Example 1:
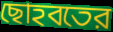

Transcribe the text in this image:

ছোহবতের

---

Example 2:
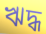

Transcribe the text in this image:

ঋদ্ধ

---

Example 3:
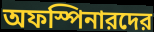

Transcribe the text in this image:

অফস্পিনারদের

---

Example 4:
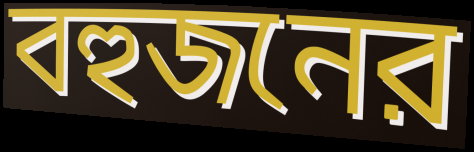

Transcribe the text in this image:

বহুজনের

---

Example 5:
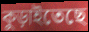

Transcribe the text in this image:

কুড়াইতেছে